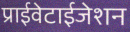
प्राईवेटाईजेशन